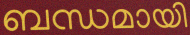
ബന്ധമായി